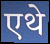
एथे